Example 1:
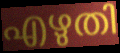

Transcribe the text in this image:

എഴുതി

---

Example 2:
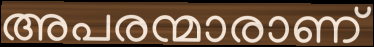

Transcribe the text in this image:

അപരന്മാരാണ്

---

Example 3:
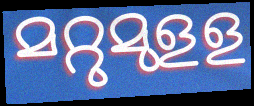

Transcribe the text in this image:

മറ്റുമുളള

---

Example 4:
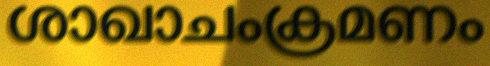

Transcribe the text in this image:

ശാഖാചംക്രമണം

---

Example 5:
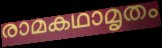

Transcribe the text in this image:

രാമകഥാമൃതം